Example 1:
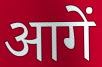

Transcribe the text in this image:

आगें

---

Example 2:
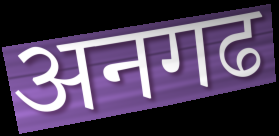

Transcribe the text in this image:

अनगढ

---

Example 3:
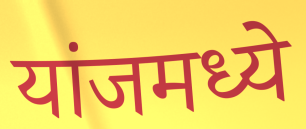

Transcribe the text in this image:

यांजमध्ये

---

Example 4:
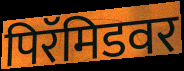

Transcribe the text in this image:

पिरॅमिडवर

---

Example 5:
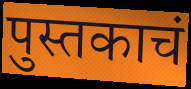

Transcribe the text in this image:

पुस्तकाचं